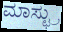
ಮಾಸ್ಟ್ರು